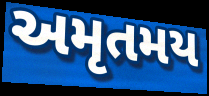
અમૃતમય